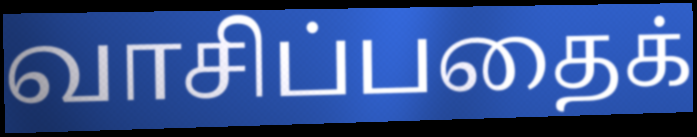
வாசிப்பதைக்